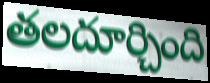
తలదూర్చింది